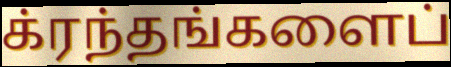
க்ரந்தங்களைப்